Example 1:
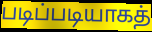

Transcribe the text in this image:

படிப்படியாகத்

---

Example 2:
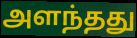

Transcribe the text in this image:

அளந்தது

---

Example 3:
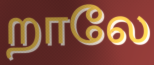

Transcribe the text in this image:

றாலே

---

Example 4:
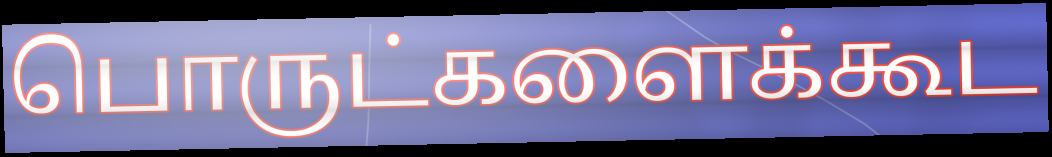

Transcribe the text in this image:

பொருட்களைக்கூட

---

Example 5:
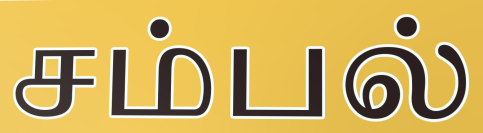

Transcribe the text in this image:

சம்பல்